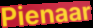
Pienaar